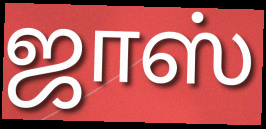
ஜாஸ்